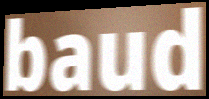
baud